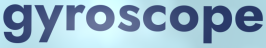
gyroscope